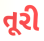
તૂરી